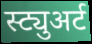
स्ट्युअर्ट